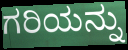
ಗರಿಯನ್ನು